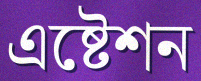
এষ্টেশন